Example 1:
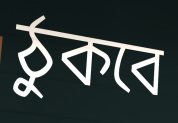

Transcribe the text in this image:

ঠুকবে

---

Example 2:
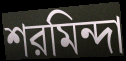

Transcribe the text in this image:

শরমিন্দা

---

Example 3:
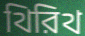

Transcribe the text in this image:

থিরিথ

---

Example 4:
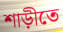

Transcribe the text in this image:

শাড়ীতে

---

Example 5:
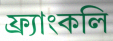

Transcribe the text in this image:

ফ্র্যাংকলি